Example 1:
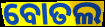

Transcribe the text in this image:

ବୋତଲ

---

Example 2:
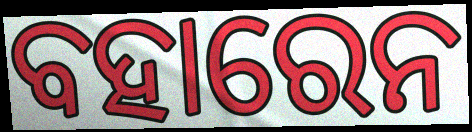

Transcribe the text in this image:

ବହାରେନ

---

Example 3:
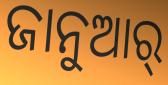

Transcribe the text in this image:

ଜାନୁଆର୍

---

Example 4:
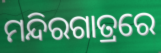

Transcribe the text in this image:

ମନ୍ଦିରଗାତ୍ରରେ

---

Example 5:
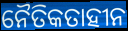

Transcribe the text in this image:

ନୈତିକତାହୀନ